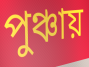
পুঞ্চায়